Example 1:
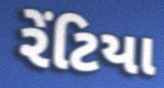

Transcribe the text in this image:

રેંટિયા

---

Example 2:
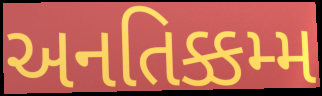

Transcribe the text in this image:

અનતિક્કમ્મ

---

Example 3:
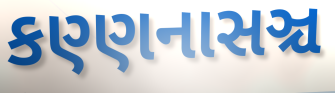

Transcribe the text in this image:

કણ્ણનાસઞ્ચ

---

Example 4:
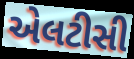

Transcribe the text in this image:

એલટીસી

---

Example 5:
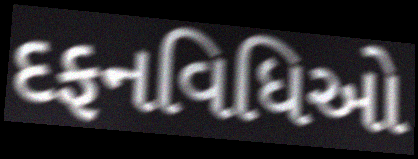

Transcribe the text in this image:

દફનવિધિઓ